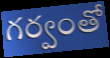
గర్వంతో